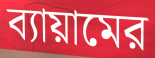
ব্যায়ামের